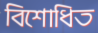
বিশোধিত